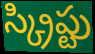
స్క్రిప్టు